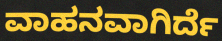
ವಾಹನವಾಗಿರ್ದೆ